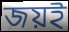
জয়ই